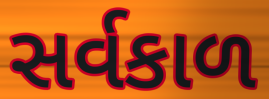
સર્વકાળ